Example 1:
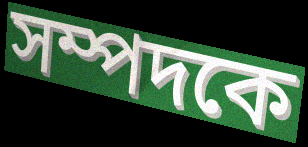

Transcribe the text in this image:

সম্পদকে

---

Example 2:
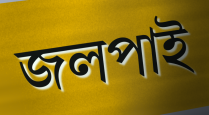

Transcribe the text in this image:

জলপাই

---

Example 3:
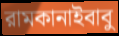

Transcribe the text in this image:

রামকানাইবাবু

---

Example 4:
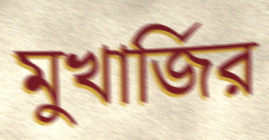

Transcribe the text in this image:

মুখার্জির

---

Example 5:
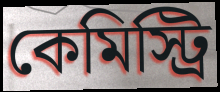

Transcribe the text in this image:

কেমিস্ট্রি